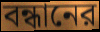
বন্ধানের